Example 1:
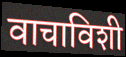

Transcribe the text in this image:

वाचाविशी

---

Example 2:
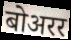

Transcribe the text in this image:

बोअरर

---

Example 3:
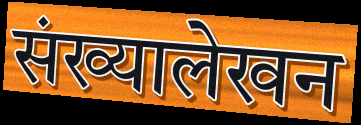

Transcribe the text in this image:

संख्यालेखन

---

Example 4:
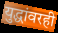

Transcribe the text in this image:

युद्धांवरही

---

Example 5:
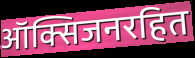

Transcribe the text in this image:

ऑक्सिजनरहित